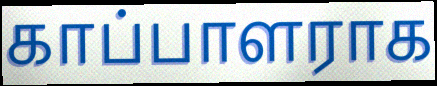
காப்பாளராக